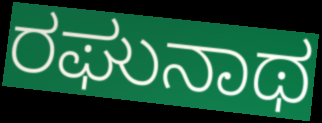
ರಘುನಾಥ